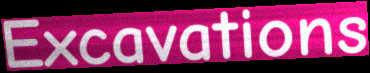
Excavations